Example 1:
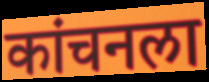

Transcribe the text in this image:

कांचनला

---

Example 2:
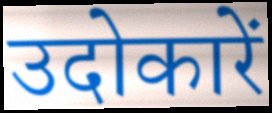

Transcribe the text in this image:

उदोकारें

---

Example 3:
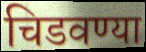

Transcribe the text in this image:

चिडवण्या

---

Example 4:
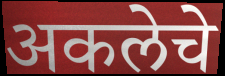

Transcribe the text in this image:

अकलेचे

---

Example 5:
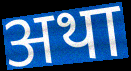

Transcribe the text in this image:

अथा